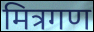
मित्रगण